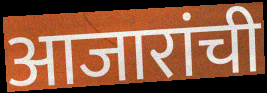
आजारांची